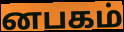
னபகம்